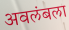
अवलंबला